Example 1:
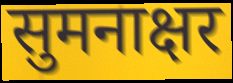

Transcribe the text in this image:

सुमनाक्षर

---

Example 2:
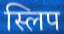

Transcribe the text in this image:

स्लिप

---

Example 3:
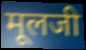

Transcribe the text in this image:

मूलजी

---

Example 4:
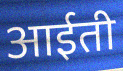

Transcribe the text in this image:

आईती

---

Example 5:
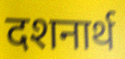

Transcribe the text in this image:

दशनार्थ